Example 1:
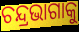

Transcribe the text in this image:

ଚନ୍ଦ୍ରଭାଗାକୁ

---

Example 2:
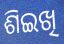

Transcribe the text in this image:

ଶିଇଖି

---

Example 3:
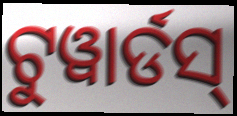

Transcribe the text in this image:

ଟୁୱାର୍ଡସ୍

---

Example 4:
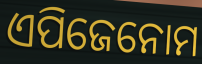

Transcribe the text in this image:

ଏପିଜେନୋମ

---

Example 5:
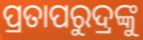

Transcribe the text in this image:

ପ୍ରତାପରୁଦ୍ରଙ୍କୁ